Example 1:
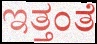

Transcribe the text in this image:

ಇತ್ತಂತೆ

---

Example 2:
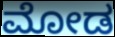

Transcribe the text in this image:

ಮೋಡ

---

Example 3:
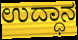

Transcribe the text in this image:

ಉದ್ಧಾನ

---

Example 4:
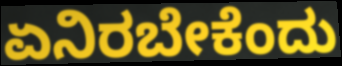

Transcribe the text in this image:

ಏನಿರಬೇಕೆಂದು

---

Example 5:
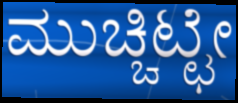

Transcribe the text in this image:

ಮುಚ್ಚಿಟ್ಟೇ